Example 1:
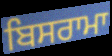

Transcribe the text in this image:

ਬਿਸਰਾਮਾ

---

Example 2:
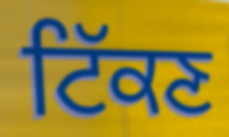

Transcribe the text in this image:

ਟਿੱਕਣ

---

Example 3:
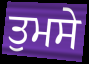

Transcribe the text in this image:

ਤੁਮਸੇ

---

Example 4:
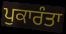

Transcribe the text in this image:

ਪੁਕਾਰੰਤਾ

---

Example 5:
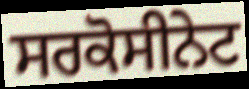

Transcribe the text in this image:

ਸਰਕੋਸੀਨੇਟ